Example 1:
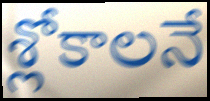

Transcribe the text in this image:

శ్లోకాలనే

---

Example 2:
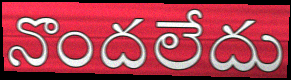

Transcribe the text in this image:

నొందలేదు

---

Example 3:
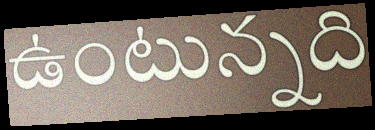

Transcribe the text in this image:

ఉంటున్నది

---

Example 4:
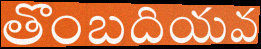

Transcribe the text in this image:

తొంబదియవ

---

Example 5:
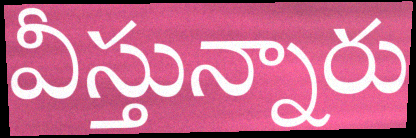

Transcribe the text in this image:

వీస్తున్నారు